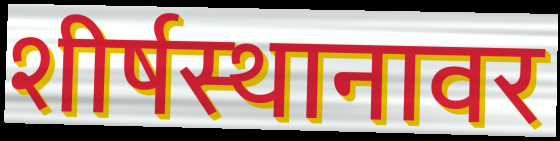
शीर्षस्थानावर